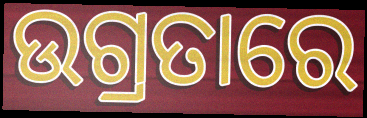
ଉଗ୍ରତାରେ